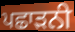
ਪਛਾੜਨੀ